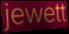
jewett